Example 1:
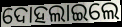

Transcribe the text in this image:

ଦୋହଲାଇଲେ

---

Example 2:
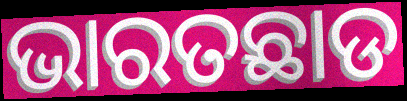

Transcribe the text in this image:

ଭାରତଛାଡ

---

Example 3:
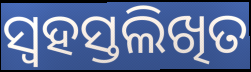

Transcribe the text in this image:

ସ୍ୱହସ୍ତଲିଖିତ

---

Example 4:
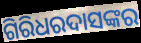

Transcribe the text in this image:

ଗିରିଧରଦାସଙ୍କର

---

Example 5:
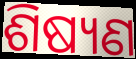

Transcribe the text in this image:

ଶିଷ୍ୟଣ